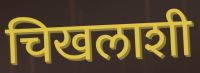
चिखलाशी